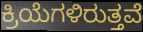
ಕ್ರಿಯೆಗಳಿರುತ್ತವೆ